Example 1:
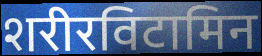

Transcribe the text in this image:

शरीरविटामिन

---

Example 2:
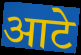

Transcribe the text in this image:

आटे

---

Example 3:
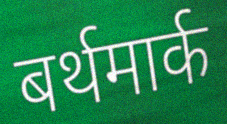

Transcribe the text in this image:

बर्थमार्क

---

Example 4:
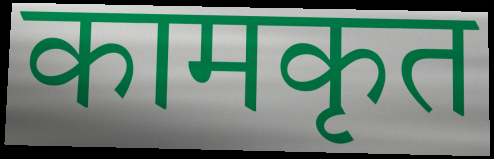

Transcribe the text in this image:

कामकृत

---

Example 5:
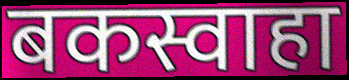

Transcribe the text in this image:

बकस्वाहा